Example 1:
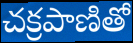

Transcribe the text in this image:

చక్రపాణితో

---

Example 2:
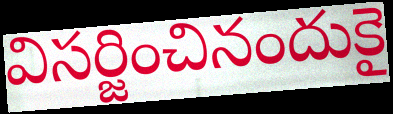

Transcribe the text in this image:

విసర్జించినందుకై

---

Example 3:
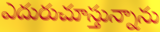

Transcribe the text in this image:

ఎదురుచూస్తున్నాను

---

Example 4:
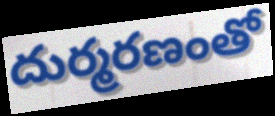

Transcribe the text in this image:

దుర్మరణంతో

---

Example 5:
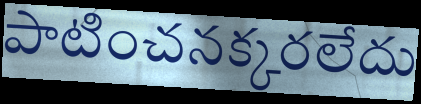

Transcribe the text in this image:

పాటించనక్కరలేదు